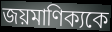
জয়মাণিক্যকে